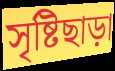
সৃষ্টিছাড়া